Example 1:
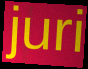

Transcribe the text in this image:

juri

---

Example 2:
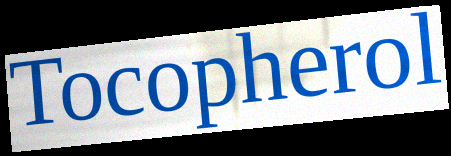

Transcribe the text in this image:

Tocopherol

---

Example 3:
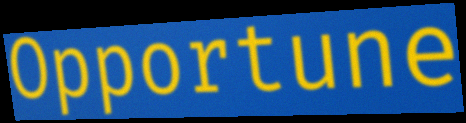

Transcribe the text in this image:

Opportune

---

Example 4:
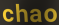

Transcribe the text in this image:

chao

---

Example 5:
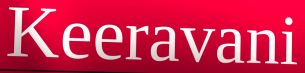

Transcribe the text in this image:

Keeravani